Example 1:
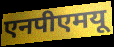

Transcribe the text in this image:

एनपीएमयू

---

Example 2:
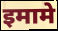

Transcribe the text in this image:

इमामे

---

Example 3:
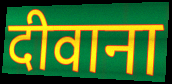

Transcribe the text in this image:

दीवाना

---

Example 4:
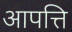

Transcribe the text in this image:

आपत्ति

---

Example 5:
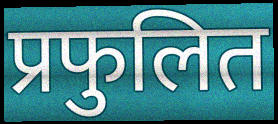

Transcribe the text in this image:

प्रफुलित